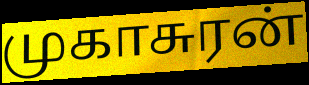
முகாசுரன்